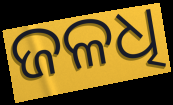
ଜଳଧି